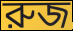
রুজ